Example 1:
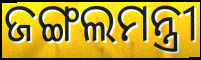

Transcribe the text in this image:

ଜଙ୍ଗଲମନ୍ତ୍ରୀ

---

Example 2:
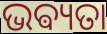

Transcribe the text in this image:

ଭଵ୍ୟତା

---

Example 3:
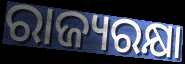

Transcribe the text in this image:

ରାଜ୍ୟରକ୍ଷା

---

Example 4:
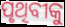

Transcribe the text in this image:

ପୃଥିବୀକୁ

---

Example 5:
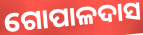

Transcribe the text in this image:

ଗୋପାଳଦାସ